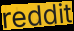
reddit